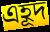
এহূদ